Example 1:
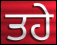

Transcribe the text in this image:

ਤਹੇ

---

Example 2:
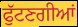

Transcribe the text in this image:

ਫੁੱਟਣਗੀਆਂ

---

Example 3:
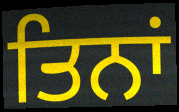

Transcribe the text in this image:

ਤਿਨਾਂ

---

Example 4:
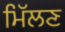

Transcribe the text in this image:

ਮਿੱਲਣ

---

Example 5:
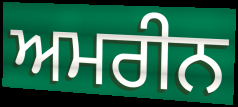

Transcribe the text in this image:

ਅਮਰੀਨ